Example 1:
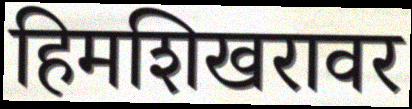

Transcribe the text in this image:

हिमशिखरावर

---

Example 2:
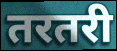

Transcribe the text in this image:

तरतरी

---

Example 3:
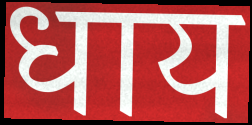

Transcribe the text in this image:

धाय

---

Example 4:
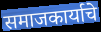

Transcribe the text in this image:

समाजकार्याचे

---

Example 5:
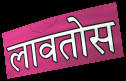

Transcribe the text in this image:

लावतोस